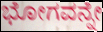
ಭೋಗವನ್ನೇ